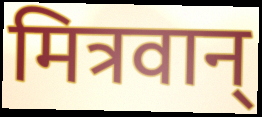
मित्रवान्